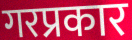
गरप्रकार